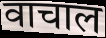
वाचाल